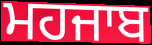
ਮਹਜਾਬ